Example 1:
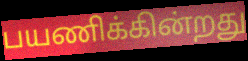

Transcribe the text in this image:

பயணிக்கின்றது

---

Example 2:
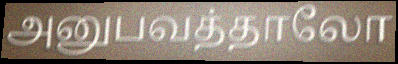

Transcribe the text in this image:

அனுபவத்தாலோ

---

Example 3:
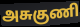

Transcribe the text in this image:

அசுகுணி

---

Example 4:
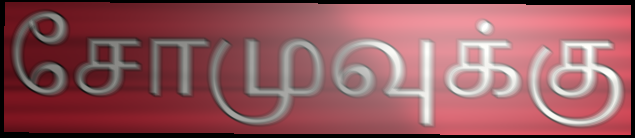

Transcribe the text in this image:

சோமுவுக்கு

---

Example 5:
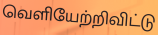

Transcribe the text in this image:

வெளியேற்றிவிட்டு